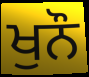
ਖੁਨੌ